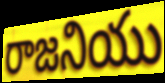
రాజనియు